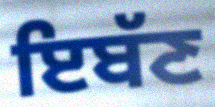
ਇਬੱਣ